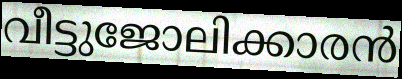
വീട്ടുജോലിക്കാരൻ